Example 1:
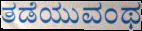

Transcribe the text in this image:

ತಡೆಯುವಂಥ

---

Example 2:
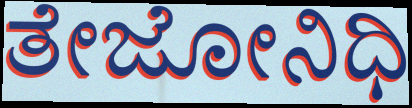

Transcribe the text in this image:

ತೇಜೋನಿಧಿ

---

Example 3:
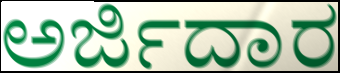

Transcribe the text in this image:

ಅರ್ಜಿದಾರ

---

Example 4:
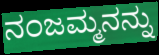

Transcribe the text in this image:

ನಂಜಮ್ಮನನ್ನು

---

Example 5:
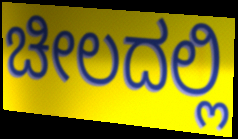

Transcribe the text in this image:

ಚೀಲದಲ್ಲಿ